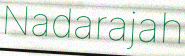
Nadarajah